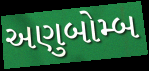
અણુબોમ્બ